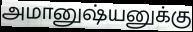
அமானுஷ்யனுக்கு